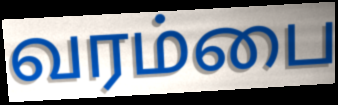
வரம்பை